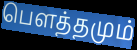
பௌத்தமும்